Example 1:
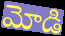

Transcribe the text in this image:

మోడి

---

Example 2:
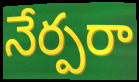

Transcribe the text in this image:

నేర్పరా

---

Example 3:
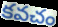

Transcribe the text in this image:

కవచం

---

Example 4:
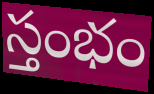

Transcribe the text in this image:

స్తంభం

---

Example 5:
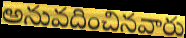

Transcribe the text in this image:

అనువదించినవారు